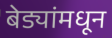
बेड्यांमधून